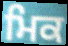
ਮਿਕ